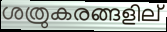
ശത്രുകരങ്ങളില്